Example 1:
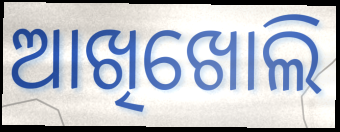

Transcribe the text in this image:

ଆଖିଖୋଲି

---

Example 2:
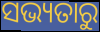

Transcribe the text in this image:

ସଭ୍ୟତାରୁ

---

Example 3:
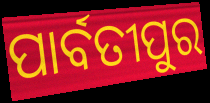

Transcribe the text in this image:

ପାର୍ବତୀପୁର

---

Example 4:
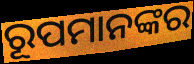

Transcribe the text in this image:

ରୂପମାନଙ୍କର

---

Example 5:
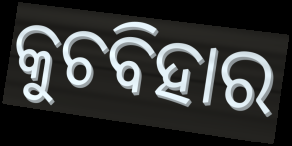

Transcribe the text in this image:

କୁଚବିହାର